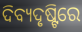
ଦିବ୍ୟଦୃଷ୍ଟିରେ